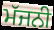
ਮੱਜਨੀ